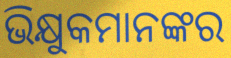
ଭିକ୍ଷୁକମାନଙ୍କର